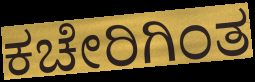
ಕಚೇರಿಗಿಂತ